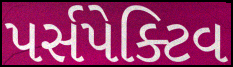
પર્સપેક્ટિવ